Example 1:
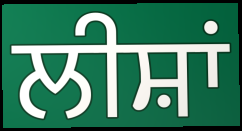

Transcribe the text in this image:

ਲੀਸ਼ਾਂ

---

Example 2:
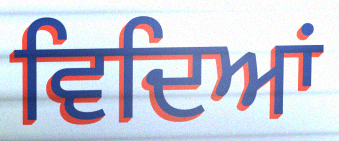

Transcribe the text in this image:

ਵਿਦਿਆਂ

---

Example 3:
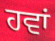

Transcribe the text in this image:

ਹਵਾਂ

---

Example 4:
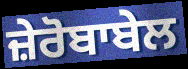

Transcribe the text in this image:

ਜ਼ੇਰੋਬਾਬੇਲ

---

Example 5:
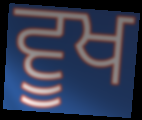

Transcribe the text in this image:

ਵੂਖ